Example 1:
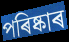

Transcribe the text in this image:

পৰিষ্কাৰ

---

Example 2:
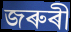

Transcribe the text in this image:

জৰুৰী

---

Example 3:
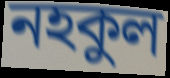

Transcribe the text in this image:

নহকুল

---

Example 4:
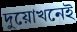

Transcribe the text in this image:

দুয়োখনেই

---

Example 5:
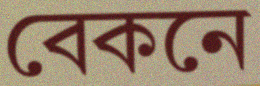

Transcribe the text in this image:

বেকনে